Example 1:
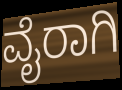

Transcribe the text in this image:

ವೈರಾಗಿ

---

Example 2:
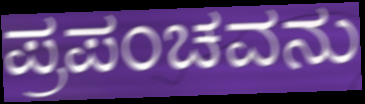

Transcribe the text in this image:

ಪ್ರಪಂಚವನು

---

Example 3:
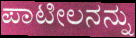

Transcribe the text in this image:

ಪಾಟೀಲನನ್ನು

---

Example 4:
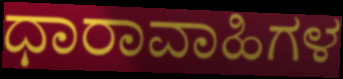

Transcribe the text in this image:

ಧಾರಾವಾಹಿಗಳ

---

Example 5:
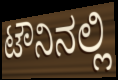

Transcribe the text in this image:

ಟೌನಿನಲ್ಲಿ